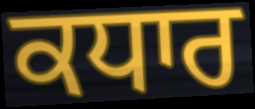
ਕਧਾਰ